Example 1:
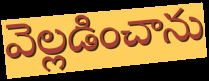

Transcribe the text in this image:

వెల్లడించాను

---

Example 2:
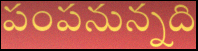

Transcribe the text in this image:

పంపనున్నది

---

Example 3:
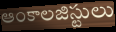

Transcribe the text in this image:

ఆంకాలజిస్టులు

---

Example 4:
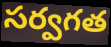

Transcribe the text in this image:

సర్వగత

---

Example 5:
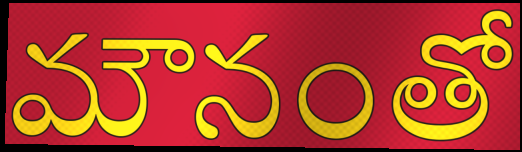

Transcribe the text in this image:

మౌనంతో